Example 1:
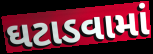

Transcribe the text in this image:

ઘટાડવામાં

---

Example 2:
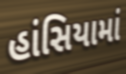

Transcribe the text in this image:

હાંસિયામાં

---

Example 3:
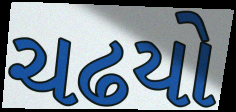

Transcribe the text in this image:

ચઢયો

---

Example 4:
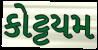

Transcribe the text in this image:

કોટ્ટયમ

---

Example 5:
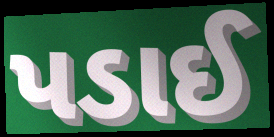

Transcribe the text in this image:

પડાઈ